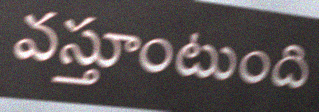
వస్తూంటుంది